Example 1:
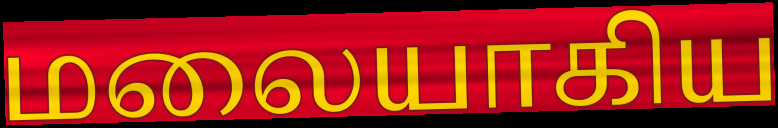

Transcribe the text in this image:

மலையாகிய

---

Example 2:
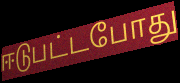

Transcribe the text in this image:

ஈடுபட்டபோது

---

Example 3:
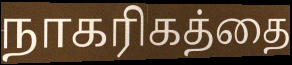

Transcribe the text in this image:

நாகரிகத்தை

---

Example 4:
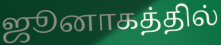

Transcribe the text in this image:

ஜூனாகத்தில்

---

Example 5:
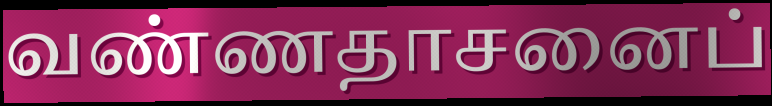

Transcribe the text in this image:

வண்ணதாசனைப்